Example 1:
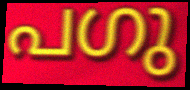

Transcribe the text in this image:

പഗു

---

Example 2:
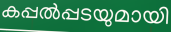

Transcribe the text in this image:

കപ്പൽപ്പടയുമായി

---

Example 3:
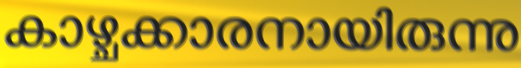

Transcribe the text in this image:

കാഴ്ചക്കാരനായിരുന്നു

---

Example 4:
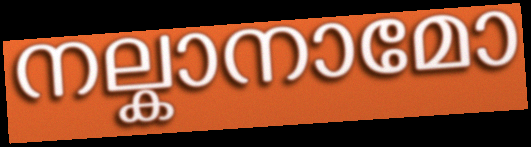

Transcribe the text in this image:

നല്കാനാമോ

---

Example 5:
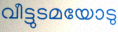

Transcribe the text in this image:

വീട്ടുടമയോടു